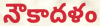
నౌకాదళం